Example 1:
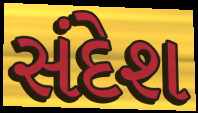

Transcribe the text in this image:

સંદેશ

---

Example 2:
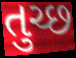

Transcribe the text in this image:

તુચ્છ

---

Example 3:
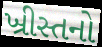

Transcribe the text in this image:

ખ્રીસ્તનો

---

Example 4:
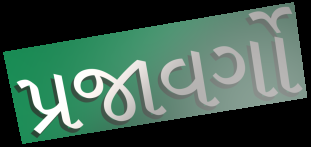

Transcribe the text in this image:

પ્રજાવર્ગો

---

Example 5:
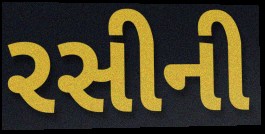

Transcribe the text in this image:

રસીની